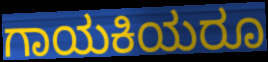
ಗಾಯಕಿಯರೂ